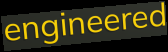
engineered